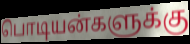
பொடியன்களுக்கு